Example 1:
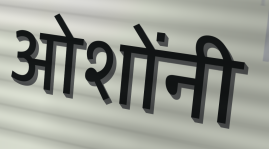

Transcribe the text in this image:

ओशोंनी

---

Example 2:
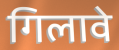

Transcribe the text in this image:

गिलावे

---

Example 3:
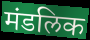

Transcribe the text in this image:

मंडलिक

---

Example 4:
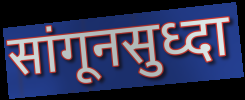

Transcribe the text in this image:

सांगूनसुध्दा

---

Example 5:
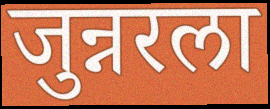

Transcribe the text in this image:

जुन्नरला